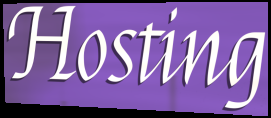
Hosting